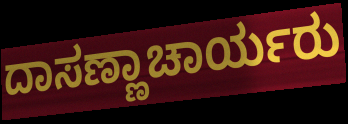
ದಾಸಣ್ಣಾಚಾರ್ಯರು